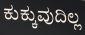
ಕುಕ್ಕುವುದಿಲ್ಲ